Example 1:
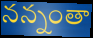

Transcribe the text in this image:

నన్నంతా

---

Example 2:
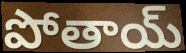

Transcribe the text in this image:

పోతాయ్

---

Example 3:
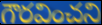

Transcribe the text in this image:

గౌరవించని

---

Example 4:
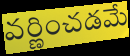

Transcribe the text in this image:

వర్ణించడమే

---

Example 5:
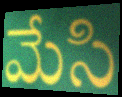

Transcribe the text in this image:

మేసి